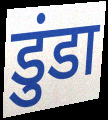
डुंडा